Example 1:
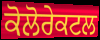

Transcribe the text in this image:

ਕੋਲੋਰੇਕਟਲ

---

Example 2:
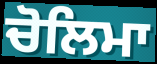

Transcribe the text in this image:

ਚੋਲਿਮਾ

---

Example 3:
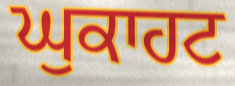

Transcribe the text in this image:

ਘੁਕਾਹਟ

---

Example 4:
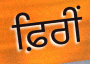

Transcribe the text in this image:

ਫ਼ਿਰੀਂ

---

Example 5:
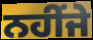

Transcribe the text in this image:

ਨਹੀਂਜੇ